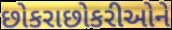
છોકરાછોકરીઓને